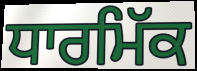
ਧਾਰਮਿੱਕ